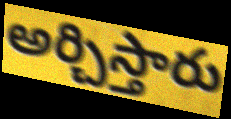
అర్చిస్తారు